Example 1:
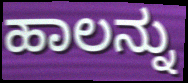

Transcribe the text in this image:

ಹಾಲನ್ನು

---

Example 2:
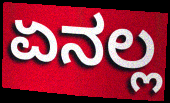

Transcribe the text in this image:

ಏನಲ್ಲ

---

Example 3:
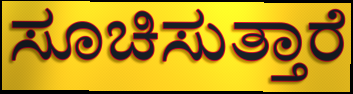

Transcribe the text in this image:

ಸೂಚಿಸುತ್ತಾರೆ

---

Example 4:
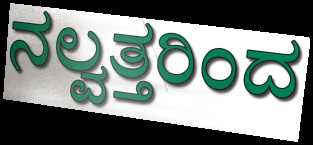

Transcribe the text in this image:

ನಲ್ವತ್ತರಿಂದ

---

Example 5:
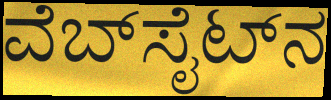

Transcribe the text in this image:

ವೆಬ್‍ಸೈಟ್‍ನ